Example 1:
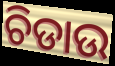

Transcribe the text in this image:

ଚିଡାଉ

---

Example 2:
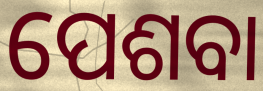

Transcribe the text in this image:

ପେଶବା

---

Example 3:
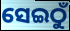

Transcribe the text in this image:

ସେଇଠୁଁ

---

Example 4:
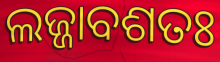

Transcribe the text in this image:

ଲଜ୍ଜାବଶତଃ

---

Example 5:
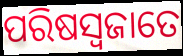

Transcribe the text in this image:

ପରିଷସ୍ଵଜାତେ